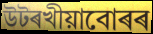
উটৰখীয়াবোৰৰ